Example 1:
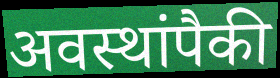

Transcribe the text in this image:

अवस्थांपैकी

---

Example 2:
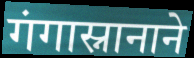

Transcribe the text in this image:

गंगास्नानाने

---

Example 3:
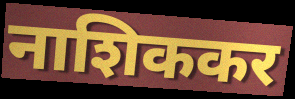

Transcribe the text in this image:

नाशिककर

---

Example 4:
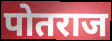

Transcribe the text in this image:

पोतराज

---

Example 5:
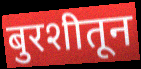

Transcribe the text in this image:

बुरशीतून